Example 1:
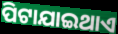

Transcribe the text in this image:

ପିଟାଯାଇଥାଏ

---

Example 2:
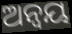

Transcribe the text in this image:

ଅନ୍ୱୟ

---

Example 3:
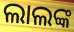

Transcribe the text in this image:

ଲାଲଙ୍କ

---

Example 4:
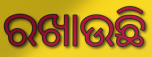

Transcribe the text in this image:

ରଖାଉଛି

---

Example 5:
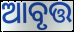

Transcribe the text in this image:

ଆବୃତ୍ତ